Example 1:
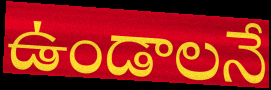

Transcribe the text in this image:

ఉండాలనే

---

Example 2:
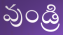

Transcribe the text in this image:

వుండ్రి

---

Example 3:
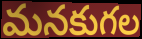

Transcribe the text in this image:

మనకుగల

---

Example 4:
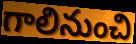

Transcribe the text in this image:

గాలినుంచి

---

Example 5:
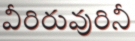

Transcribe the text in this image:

వీరిరువురినీ